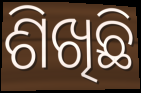
ଶିଖିଛି